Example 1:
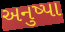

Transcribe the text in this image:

અનુષ્પા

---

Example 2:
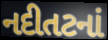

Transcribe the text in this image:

નદીતટનાં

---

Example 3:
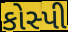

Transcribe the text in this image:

કોસ્પી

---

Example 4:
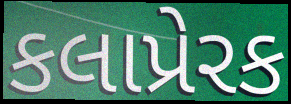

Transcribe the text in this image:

કલાપ્રેરક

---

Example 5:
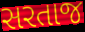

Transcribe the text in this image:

સરતાજ